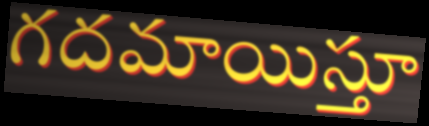
గదమాయిస్తూ